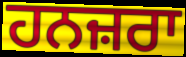
ਹਨਜ਼ਰਾ